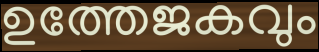
ഉത്തേജകവും